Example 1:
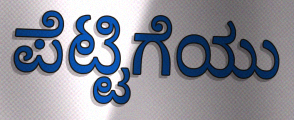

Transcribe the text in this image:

ಪೆಟ್ಟಿಗೆಯು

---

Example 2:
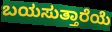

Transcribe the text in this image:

ಬಯಸುತ್ತಾರೆಯೆ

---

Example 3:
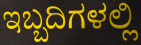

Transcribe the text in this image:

ಇಬ್ಬದಿಗಳಲ್ಲಿ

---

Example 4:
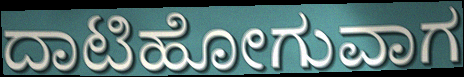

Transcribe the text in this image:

ದಾಟಿಹೋಗುವಾಗ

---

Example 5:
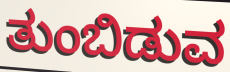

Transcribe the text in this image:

ತುಂಬಿಡುವ